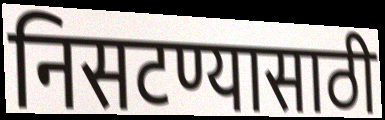
निसटण्यासाठी